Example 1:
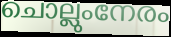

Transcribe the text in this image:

ചൊല്ലുംനേരം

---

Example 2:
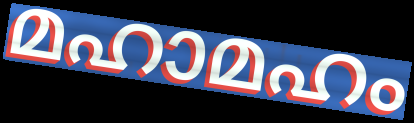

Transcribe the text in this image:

മഹാമഹം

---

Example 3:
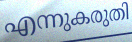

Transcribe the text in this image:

എന്നുകരുതി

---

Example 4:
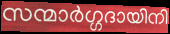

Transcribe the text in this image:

സന്മാർഗ്ഗദായിനി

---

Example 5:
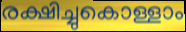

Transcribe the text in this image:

രക്ഷിച്ചുകൊള്ളാം